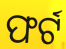
ଫର୍ଟ